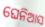
ଘେନିଆସ